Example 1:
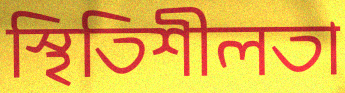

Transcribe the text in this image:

স্থিতিশীলতা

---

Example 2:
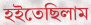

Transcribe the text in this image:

হইতেছিলাম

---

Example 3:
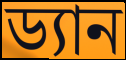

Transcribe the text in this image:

ড্যান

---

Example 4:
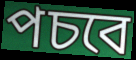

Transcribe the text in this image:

পচবে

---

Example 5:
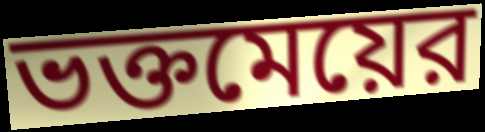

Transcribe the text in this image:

ভক্তমেয়ের